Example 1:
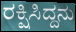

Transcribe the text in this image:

ರಕ್ಷಿಸಿದ್ದನು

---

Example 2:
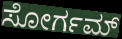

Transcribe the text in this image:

ಸೋರ್ಗಮ್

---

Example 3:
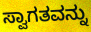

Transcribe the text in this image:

ಸ್ವಾಗತವನ್ನು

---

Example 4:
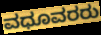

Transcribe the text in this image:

ವಧೂವರರು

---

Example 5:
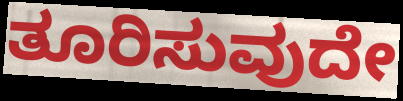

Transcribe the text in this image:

ತೂರಿಸುವುದೇ